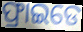
ଫ୍ରାଇଡେ